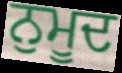
ਨੁਮੂਦ